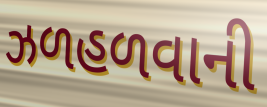
ઝળહળવાની